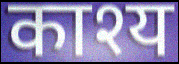
काश्य